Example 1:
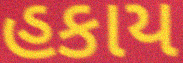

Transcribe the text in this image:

હકાય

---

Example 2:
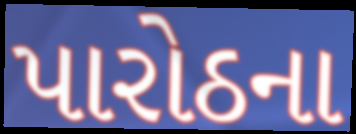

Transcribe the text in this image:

પારોઠના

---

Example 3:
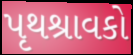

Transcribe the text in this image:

પૃથશ્રાવકો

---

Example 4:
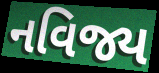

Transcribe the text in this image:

નવિજ્ય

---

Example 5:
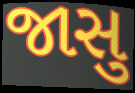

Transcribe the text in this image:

જાસુ